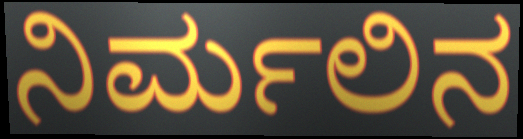
ನಿರ್ಮಲಿನ